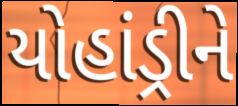
યોહાંડ્રીને